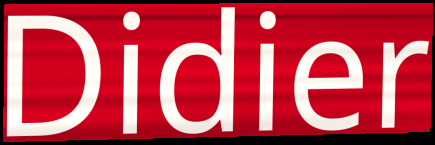
Didier